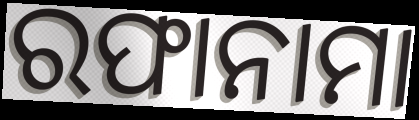
ରଫାନାମା